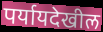
पर्यायदेखील